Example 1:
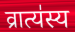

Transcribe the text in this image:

व्रात्य॑स्य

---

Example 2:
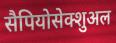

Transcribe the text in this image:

सैपियोसेक्शुअल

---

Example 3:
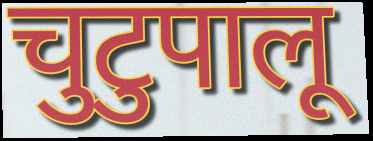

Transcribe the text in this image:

चुटुपालू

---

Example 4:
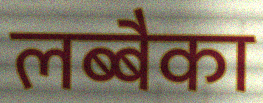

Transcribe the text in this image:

लब्बैका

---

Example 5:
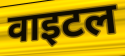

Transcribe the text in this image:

वाइटल